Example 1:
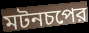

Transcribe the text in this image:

মটনচপের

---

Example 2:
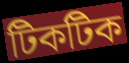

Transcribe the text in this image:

টিকটিক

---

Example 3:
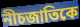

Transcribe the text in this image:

নীচজাতিকে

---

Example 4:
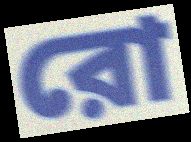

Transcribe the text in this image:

রো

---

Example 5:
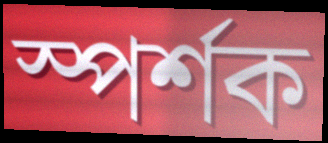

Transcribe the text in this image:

স্পর্শক